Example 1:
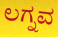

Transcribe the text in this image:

ಲಗ್ನವ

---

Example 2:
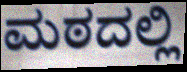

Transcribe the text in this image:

ಮಠದಲ್ಲಿ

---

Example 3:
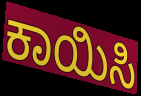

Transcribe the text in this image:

ಕಾಯಿಸಿ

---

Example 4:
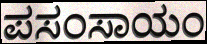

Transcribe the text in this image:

ಪಸಂಸಾಯಂ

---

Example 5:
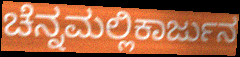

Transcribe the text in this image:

ಚೆನ್ನಮಲ್ಲಿಕಾರ್ಜುನ